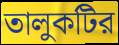
তালুকটির